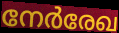
നേർരേഖ